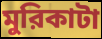
মুরিকাটা